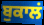
ਬੁਕਾਲਂ